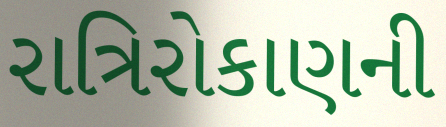
રાત્રિરોકાણની